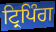
ਟ੍ਰਿਪਿੰਗ